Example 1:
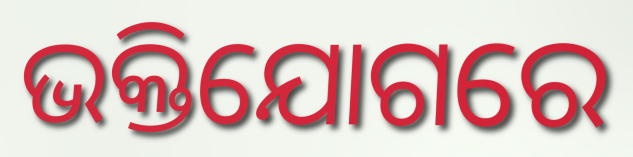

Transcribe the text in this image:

ଭକ୍ତିଯୋଗରେ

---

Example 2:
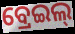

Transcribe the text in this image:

ବ୍ରେଇଲ୍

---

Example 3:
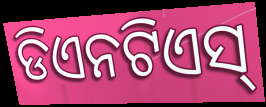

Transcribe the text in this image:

ଡିଏନଟିଏସ୍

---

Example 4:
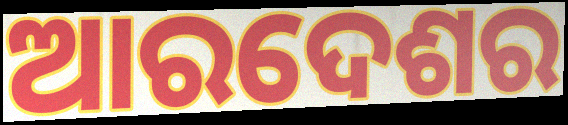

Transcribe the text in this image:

ଆରଦେଶର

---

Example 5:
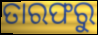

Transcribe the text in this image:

ତାରଫରୁ